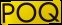
POQ